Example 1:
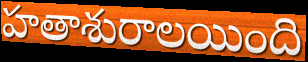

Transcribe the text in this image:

హతాశురాలయింది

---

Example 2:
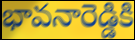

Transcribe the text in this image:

భావనారెడ్డికి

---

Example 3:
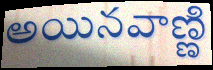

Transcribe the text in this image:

అయినవాణ్ణి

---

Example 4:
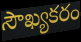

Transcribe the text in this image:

సౌఖ్యకరం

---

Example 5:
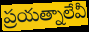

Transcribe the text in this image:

ప్రయత్నాలేవీ